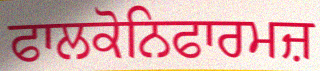
ਫਾਲਕੋਨਿਫਾਰਮਜ਼